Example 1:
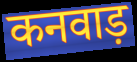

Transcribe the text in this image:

कनवाड़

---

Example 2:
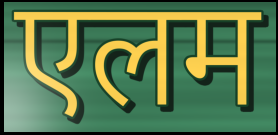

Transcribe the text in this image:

एलम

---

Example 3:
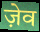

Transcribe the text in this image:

ज़ेव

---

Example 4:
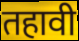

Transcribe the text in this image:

तहावी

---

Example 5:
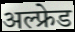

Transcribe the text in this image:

अल्फ्रेड